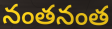
నంతనంత